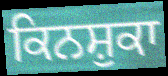
ਕਿਨਸ਼ੁਕਾ